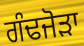
ਗੰਢਜੋੜਾ